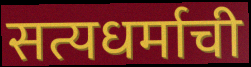
सत्यधर्माची